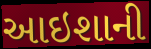
આઇશાની